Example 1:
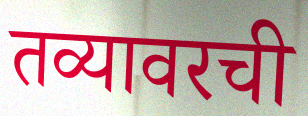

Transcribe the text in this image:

तव्यावरची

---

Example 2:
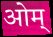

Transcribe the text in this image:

ओम्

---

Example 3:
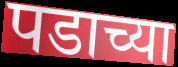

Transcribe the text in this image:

पडाच्या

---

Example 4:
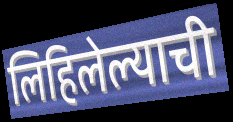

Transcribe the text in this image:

लिहिलेल्याची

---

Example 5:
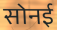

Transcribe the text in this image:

सोनई